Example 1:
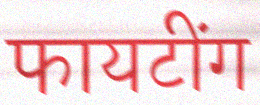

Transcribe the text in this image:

फायटींग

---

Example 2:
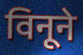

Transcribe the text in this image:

विनूने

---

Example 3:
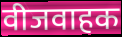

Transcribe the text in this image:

वीजवाहक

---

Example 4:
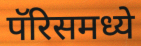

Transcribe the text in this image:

पॅरिसमध्ये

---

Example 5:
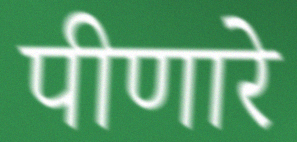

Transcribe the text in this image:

पीणारे